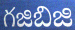
గజిబిజి